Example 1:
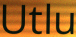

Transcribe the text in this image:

Utlu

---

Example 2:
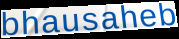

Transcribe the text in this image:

bhausaheb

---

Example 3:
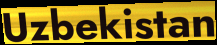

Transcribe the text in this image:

Uzbekistan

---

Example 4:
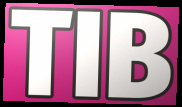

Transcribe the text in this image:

TIB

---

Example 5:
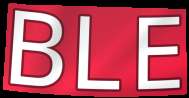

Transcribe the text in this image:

BLE